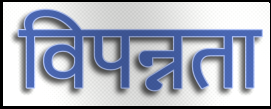
विपन्नता